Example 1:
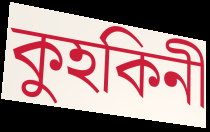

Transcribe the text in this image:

কুহকিনী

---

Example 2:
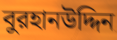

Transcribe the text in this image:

বুরহানউদ্দিন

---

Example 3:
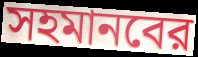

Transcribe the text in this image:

সহমানবের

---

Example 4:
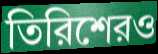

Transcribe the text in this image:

তিরিশেরও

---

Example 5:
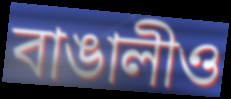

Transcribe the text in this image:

বাঙালীও